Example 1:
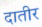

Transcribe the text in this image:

दातीर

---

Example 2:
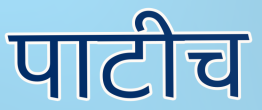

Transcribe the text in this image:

पाटीच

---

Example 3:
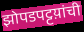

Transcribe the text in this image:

झोपडपट्टय़ांची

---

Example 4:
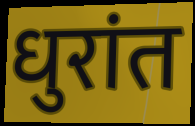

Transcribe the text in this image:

धुरांत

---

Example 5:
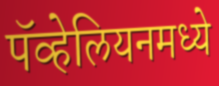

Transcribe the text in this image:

पॅव्हेलियनमध्ये